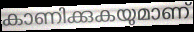
കാണിക്കുകയുമാണ്